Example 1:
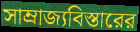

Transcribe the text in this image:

সাম্রাজ্যবিস্তারের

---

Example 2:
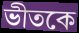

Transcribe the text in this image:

ভীতকে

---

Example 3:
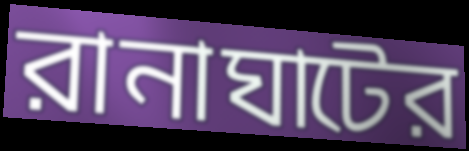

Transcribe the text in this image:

রানাঘাটের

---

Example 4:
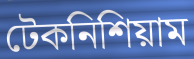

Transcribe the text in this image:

টেকনিশিয়াম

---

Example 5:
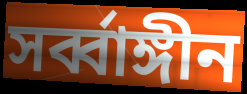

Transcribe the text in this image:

সর্ব্বাঙ্গীন